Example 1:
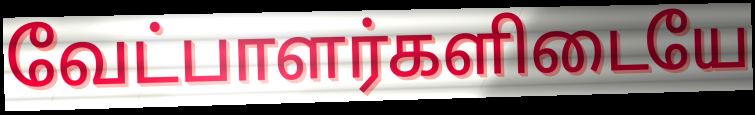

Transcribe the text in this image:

வேட்பாளர்களிடையே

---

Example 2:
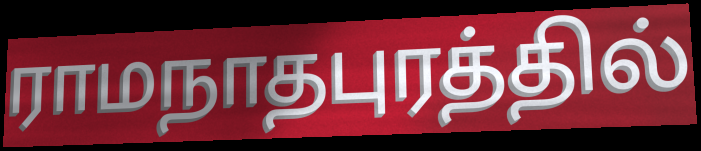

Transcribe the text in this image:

ராமநாதபுரத்தில்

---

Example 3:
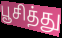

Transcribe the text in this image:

பூசித்து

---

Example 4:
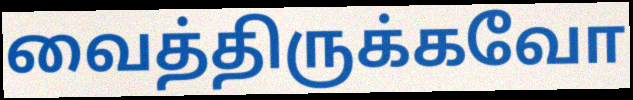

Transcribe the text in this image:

வைத்திருக்கவோ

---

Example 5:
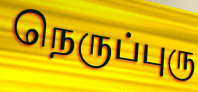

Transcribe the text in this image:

நெருப்புரு